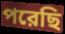
পরেছি